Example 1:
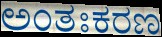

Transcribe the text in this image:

ಅಂತಃಕರಣ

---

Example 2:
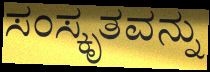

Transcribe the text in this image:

ಸಂಸ್ಕೃತವನ್ನು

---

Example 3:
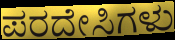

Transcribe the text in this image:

ಪರದೇಸಿಗಳು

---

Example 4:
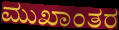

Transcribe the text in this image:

ಮುಖಾಂತರ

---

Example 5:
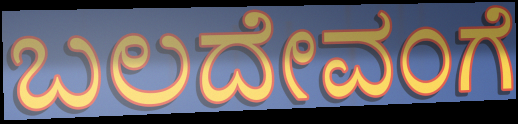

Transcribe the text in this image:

ಬಲದೇವಂಗೆ